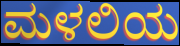
ಮಳಲಿಯ